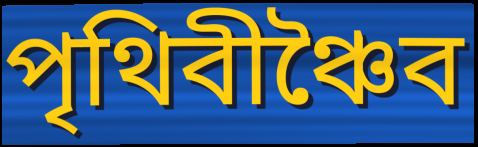
পৃথিবীঞ্চৈব